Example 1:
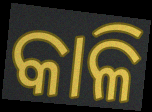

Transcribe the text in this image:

କାଳି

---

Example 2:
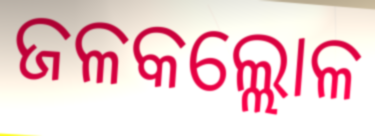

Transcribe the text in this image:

ଜଳକଲ୍ଲୋଳ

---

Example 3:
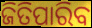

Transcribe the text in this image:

ଜିତିପାରିବ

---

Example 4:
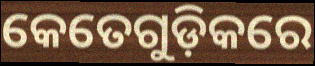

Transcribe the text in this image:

କେତେଗୁଡ଼ିକରେ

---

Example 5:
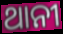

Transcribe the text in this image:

ଥାନୀ